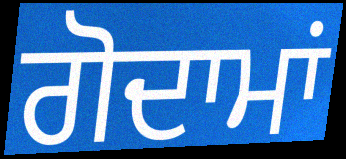
ਗੋਦਾਮਾਂ